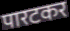
पारटकर